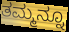
ತಮ್ಮನ್ನೂ